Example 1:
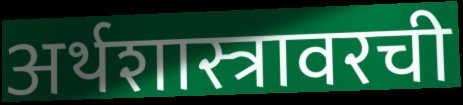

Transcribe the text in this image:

अर्थशास्त्रावरची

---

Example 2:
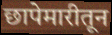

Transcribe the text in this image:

छापेमारीतून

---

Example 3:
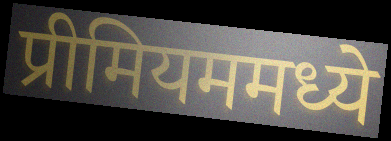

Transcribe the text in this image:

प्रीमियममध्ये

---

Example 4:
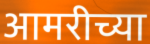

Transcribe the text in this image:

आमरीच्या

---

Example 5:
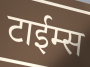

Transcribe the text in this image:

टाईम्स